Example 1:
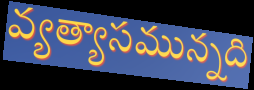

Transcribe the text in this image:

వ్యత్యాసమున్నది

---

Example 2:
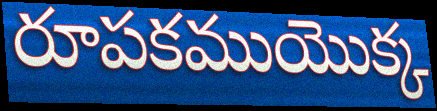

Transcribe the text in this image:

రూపకముయొక్క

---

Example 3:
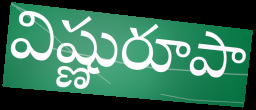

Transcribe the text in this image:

విష్ణురూపా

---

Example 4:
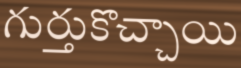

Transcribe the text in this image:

గుర్తుకొచ్చాయి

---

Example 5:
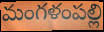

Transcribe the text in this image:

మంగళంపల్లి